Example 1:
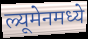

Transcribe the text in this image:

ल्यूमेनमध्ये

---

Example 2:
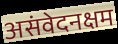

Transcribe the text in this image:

असंवेदनक्षम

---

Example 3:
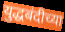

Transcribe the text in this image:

युद्धबंदीच्या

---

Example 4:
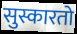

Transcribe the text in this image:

सुस्कारतो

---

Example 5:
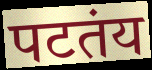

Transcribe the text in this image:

पटतंय